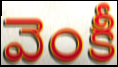
వెంకీ